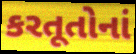
કરતૂતોનાં